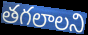
తగలాలని